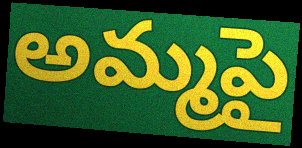
అమ్మపై